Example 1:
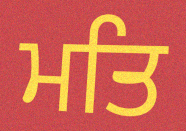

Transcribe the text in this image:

ਮਤਿ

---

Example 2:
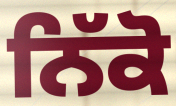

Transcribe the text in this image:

ਨਿੱਕੋ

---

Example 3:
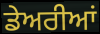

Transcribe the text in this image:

ਡੇਅਰੀਆਂ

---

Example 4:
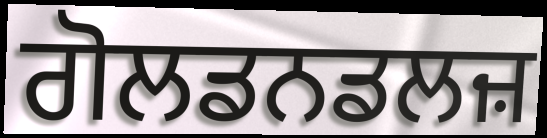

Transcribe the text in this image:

ਗੋਲਡਨਡਲਜ਼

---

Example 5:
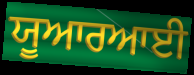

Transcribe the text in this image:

ਯੂਆਰਆਈ